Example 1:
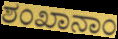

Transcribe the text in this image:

ಶಂಖಾನಾಂ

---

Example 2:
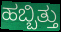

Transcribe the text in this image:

ಹಬ್ಬಿತ್ತು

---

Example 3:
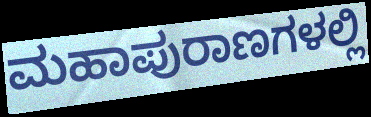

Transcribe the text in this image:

ಮಹಾಪುರಾಣಗಳಲ್ಲಿ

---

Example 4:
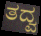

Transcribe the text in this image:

ತದ್ವ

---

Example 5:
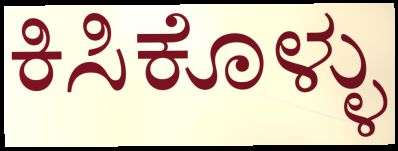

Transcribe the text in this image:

ಕಿಸಿಕೊಳ್ಳು